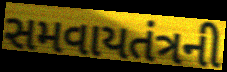
સમવાયતંત્રની